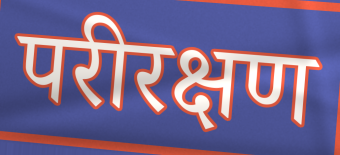
परीरक्षण